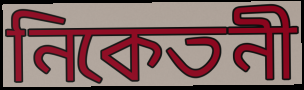
নিকেতনী